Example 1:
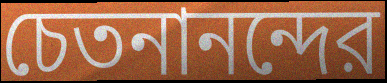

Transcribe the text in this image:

চেতনানন্দের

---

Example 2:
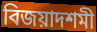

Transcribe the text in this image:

বিজয়াদশমী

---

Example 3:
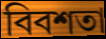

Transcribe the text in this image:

বিবশতা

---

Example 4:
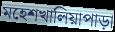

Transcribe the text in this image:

মহেশখালিয়াপাড়া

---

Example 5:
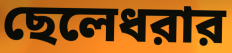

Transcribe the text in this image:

ছেলেধরার